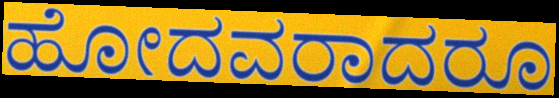
ಹೋದವರಾದರೂ